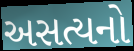
અસત્યનો